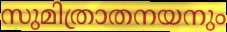
സുമിത്രാതനയനും